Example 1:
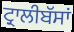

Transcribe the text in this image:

ਟ੍ਰਾਲੀਬੱਸਾਂ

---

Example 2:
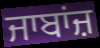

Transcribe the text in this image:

ਜਾਬਾਂਜ਼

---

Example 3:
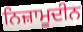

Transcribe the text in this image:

ਨਿਜ਼ਾਮੂਦੀਨ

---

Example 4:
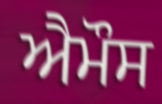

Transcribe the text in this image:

ਐਮੌਸ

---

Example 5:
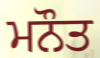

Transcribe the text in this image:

ਮਨੌਤ